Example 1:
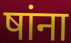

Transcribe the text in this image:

षांना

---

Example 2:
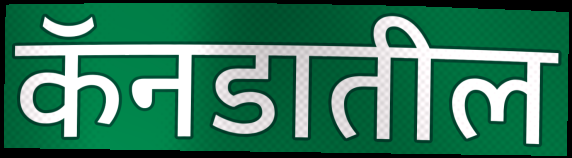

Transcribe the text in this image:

कॅनडातील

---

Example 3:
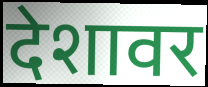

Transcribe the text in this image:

देशावर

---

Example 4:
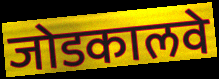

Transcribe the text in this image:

जोडकालवे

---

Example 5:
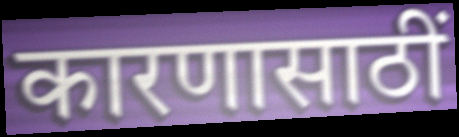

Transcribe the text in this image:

कारणासाठीं